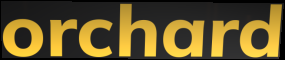
orchard